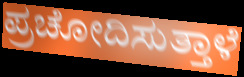
ಪ್ರಚೋದಿಸುತ್ತಾಳೆ